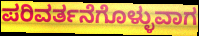
ಪರಿವರ್ತನೆಗೊಳ್ಳುವಾಗ